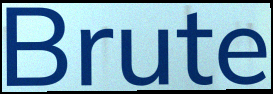
Brute